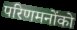
परिणमनोंको